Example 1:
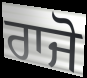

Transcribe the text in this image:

ਰਾਜੋ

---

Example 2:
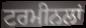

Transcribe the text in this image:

ਟਰਮੀਨਲਾਂ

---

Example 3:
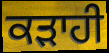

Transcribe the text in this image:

ਕੜਾਹੀ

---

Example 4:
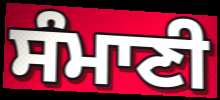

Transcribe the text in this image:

ਸੰਮਾਣੀ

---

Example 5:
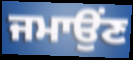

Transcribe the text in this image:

ਜਮਾਉਂਣ